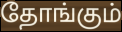
தோங்கும்